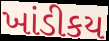
ખાંડીકય